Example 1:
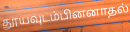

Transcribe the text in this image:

தூயவுடம்பினனாதல்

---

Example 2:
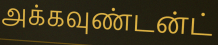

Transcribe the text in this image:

அக்கவுண்டன்ட்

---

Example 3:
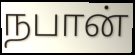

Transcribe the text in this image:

நபான்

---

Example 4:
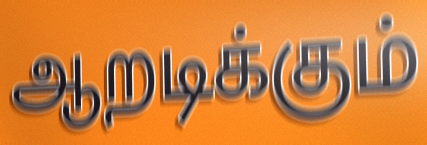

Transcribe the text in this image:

ஆறடிக்கும்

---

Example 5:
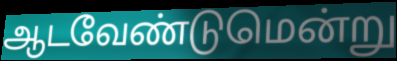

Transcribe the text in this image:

ஆடவேண்டுமென்று